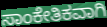
ಸಾಂಕೇತಿಕವಾಗಿ